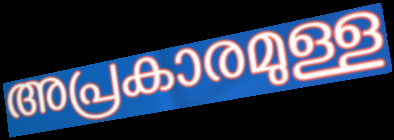
അപ്രകാരമുള്ള